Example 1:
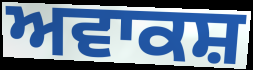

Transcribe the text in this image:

ਅਵਾਕਸ਼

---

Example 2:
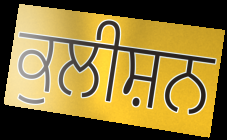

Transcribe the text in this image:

ਕੁਲੀਸ਼ਨ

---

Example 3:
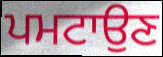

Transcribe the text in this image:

ਪਮਟਾਉਣ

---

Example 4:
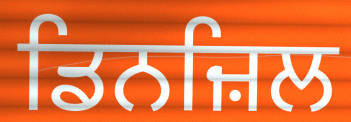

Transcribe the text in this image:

ਡਿਨਜ਼ਿਲ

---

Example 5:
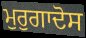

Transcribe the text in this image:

ਮੁਰੁਗਾਦੋਸ